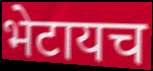
भेटायच